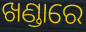
ଖଣ୍ଡାରେ